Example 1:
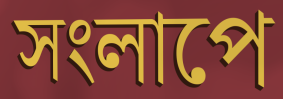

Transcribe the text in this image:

সংলাপে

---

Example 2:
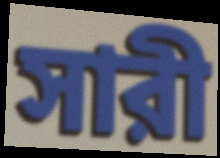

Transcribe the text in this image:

সারী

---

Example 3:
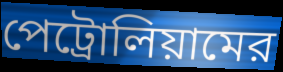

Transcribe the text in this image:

পেট্রোলিয়ামের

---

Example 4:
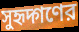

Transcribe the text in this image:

সুহৃদ্গণের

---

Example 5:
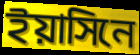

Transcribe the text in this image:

ইয়াসিনে